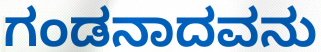
ಗಂಡನಾದವನು